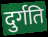
दुर्गति